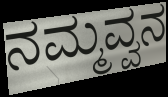
ನಮ್ಮವ್ವನ